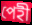
পেহী